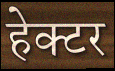
हेक्टर